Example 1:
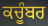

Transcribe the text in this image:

ਕਚੂੰਬਰ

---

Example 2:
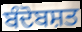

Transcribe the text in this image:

ਬੰਦੋਬਸ਼ਤ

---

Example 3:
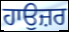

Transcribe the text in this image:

ਹਾਉਜ਼ਰ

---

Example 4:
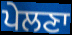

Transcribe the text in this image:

ਪੇਲਣਾ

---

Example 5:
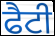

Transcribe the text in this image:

ਫੈਟੀ